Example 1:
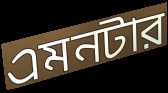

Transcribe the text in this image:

এমনটার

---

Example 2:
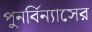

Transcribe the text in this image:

পুনর্বিন্যাসের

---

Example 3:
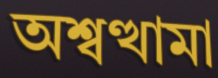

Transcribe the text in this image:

অশ্বত্থামা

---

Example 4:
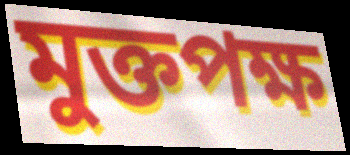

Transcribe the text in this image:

মুক্তপক্ষ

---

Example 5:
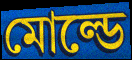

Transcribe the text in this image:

মোল্ডে